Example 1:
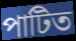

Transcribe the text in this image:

পাটিত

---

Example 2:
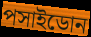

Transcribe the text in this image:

পসাইডোন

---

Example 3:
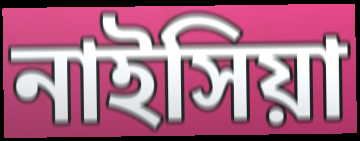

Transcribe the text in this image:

নাইসিয়া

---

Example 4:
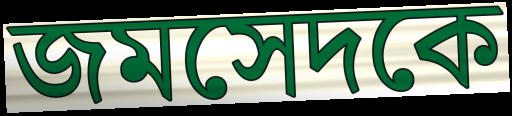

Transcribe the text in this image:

জমসেদকে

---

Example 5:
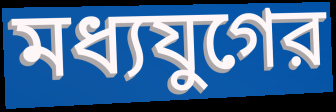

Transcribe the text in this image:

মধ্যযুগের